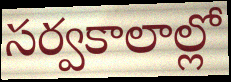
సర్వకాలాల్లో